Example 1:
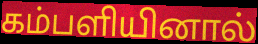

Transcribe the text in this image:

கம்பளியினால்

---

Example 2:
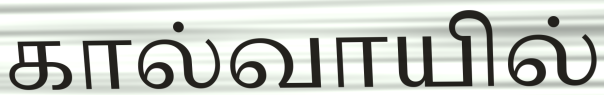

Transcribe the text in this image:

கால்வாயில்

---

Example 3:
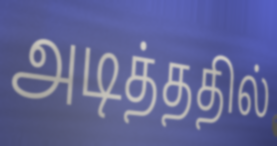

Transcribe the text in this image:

அடித்ததில்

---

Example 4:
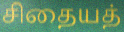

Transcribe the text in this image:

சிதையத்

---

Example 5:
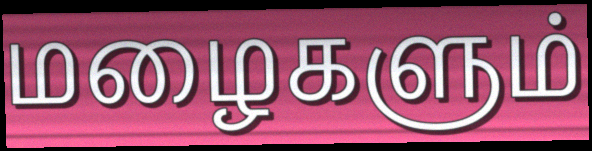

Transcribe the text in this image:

மழைகளும்